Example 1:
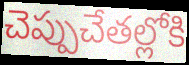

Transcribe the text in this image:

చెప్పుచేతల్లోకి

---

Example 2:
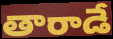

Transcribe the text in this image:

తారాడే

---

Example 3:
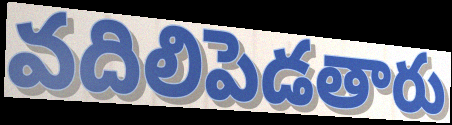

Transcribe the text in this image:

వదిలిపెడతారు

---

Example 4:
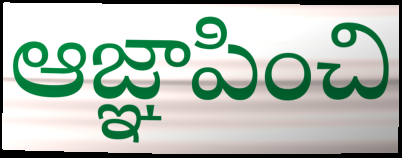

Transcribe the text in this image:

ఆజ్ఞాపించి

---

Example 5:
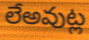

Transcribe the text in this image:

లేఅవుట్ల